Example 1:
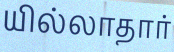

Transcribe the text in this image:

யில்லாதார்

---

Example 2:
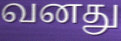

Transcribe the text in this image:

வனது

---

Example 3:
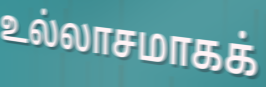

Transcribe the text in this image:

உல்லாசமாகக்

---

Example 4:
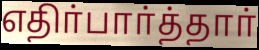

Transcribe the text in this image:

எதிர்பார்த்தார்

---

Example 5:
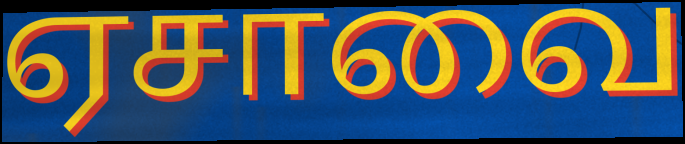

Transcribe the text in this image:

ஏசாவை